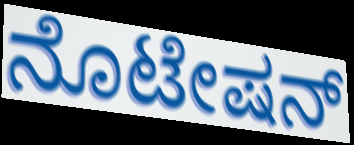
ನೊಟೇಷನ್